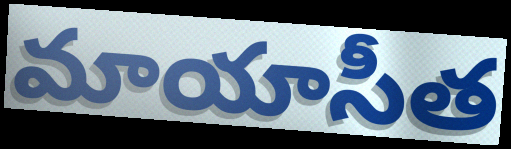
మాయాసీత